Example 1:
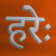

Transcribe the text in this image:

हरेः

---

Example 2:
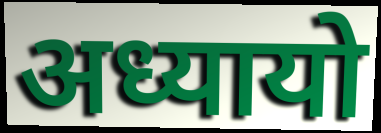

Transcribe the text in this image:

अध्यायो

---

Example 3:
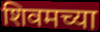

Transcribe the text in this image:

शिवमच्या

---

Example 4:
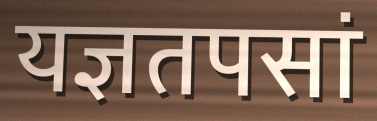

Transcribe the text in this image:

यज्ञतपसां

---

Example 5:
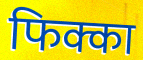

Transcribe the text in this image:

फिक्का